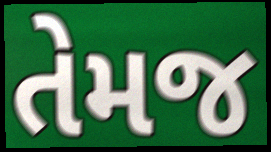
તેમજ